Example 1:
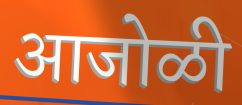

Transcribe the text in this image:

आजोळी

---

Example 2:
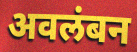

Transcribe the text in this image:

अवलंबन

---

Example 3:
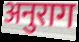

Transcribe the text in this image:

अनुराग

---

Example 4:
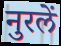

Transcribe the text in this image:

नुरलें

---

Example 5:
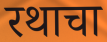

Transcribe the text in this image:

रथाचा